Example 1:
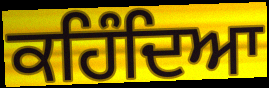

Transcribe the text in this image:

ਕਹਿੰਦਿਆ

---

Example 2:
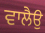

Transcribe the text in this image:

ਵਾਲੈਉ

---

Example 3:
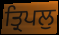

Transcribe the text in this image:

ਤ੍ਰਿਪਲੁ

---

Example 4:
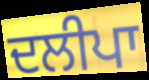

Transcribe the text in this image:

ਦਲੀਪਾ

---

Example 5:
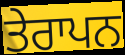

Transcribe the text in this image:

ਤੇਰਾਪਨ